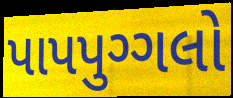
પાપપુગ્ગલો